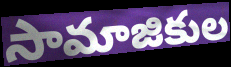
సామాజికుల